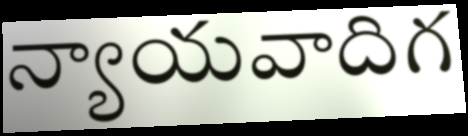
న్యాయవాదిగ